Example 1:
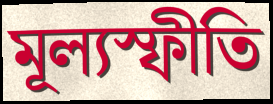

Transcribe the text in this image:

মূল্যস্ফীতি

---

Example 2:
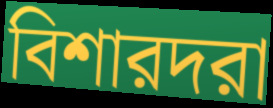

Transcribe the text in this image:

বিশারদরা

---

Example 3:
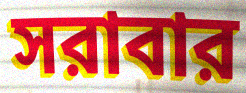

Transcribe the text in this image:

সরাবার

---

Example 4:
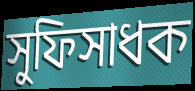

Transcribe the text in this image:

সুফিসাধক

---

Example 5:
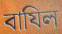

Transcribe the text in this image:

বাযিল